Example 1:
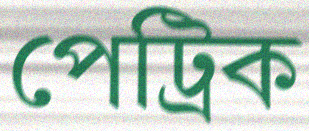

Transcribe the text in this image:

পেট্ৰিক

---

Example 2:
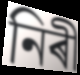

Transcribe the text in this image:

নিৰী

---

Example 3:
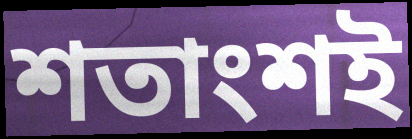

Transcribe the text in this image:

শতাংশই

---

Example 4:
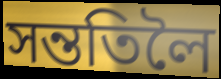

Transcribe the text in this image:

সন্ততিলৈ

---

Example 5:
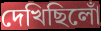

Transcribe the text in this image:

দেখিছিলোঁ